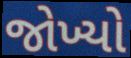
જોખ્યો